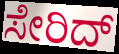
ಸೇರಿದ್